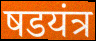
षडयंत्र